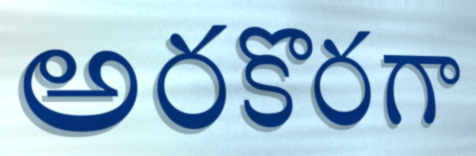
అరకొరగా